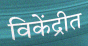
विकेंद्रीत